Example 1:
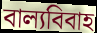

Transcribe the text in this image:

বাল্যবিবাহ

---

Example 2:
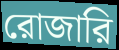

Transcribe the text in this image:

রোজারি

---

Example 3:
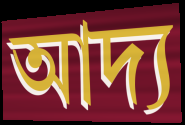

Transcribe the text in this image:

আদ্য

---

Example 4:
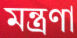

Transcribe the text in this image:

মন্ত্রণা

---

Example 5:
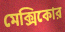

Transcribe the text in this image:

মেক্সিকোর